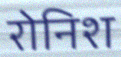
रोनिश